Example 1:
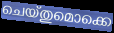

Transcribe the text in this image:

ചെയ്തുമൊക്കെ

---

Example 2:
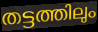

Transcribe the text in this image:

തട്ടത്തിലും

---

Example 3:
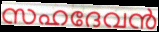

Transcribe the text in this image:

സഹദേവൻ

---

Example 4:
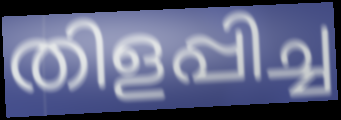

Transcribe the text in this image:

തിളപ്പിച്ച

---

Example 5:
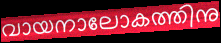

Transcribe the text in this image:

വായനാലോകത്തിനു